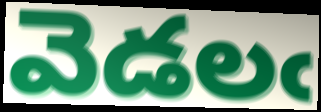
వెడలఁ